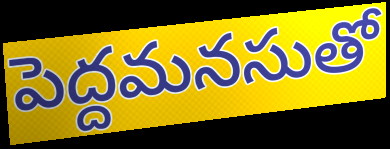
పెద్దమనసుతో